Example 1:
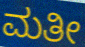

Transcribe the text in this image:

ಮತೀ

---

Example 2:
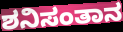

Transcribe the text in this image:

ಶನಿಸಂತಾನ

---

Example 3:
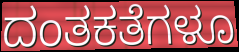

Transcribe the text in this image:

ದಂತಕತೆಗಳೂ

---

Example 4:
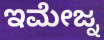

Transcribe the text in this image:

ಇಮೇಜ್ನ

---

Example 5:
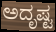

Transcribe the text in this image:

ಅದೃಷ್ಟ